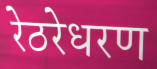
रेठरेधरण